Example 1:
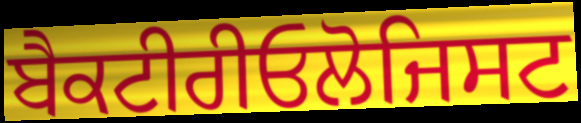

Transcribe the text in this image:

ਬੈਕਟੀਰੀਓਲੋਜਿਸਟ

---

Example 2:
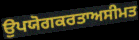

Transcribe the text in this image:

ਉਪਯੋਗਕਰਤਾਅਸੀਮਤ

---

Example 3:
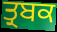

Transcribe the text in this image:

ਤ੍ਰਬਕ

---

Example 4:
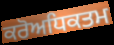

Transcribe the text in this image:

ਕਰੋਅਧਿਕਤਮ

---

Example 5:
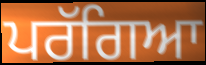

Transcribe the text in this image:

ਪਰੱਗਿਆ